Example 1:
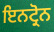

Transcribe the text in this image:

ਇਨਟ੍ਰੋਨ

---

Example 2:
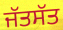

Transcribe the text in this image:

ਜੱਤਸੱਤ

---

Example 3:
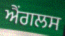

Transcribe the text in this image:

ਐਂਗਲਸ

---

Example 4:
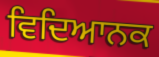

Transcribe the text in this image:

ਵਿਦਿਆਨਕ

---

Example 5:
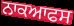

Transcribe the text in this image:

ਨਾਕਆਫਸ